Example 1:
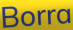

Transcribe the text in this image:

Borra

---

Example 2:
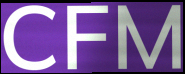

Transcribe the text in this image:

CFM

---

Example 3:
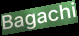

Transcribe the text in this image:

Bagachi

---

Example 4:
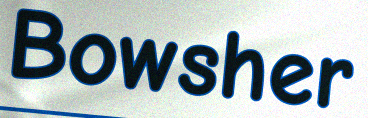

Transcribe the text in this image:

Bowsher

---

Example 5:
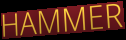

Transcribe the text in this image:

HAMMER